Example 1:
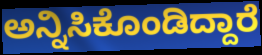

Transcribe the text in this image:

ಅನ್ನಿಸಿಕೊಂಡಿದ್ದಾರೆ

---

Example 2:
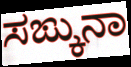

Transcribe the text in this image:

ಸಙ್ಕುನಾ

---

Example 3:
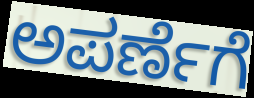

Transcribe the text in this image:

ಅಪರ್ಣೆಗೆ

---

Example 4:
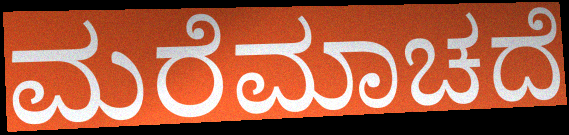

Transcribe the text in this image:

ಮರೆಮಾಚದೆ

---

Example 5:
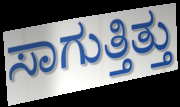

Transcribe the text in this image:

ಸಾಗುತ್ತಿತ್ತು